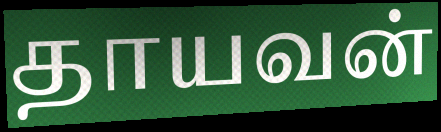
தாயவன்